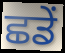
ਛਡੇਂ